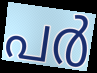
പർ